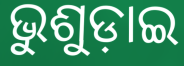
ଭୁଶୁଡ଼ାଇ